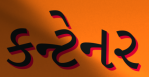
કન્ટેનર